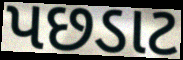
પછડાટ